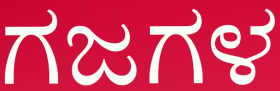
ಗಜಗಳ